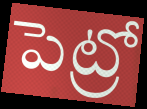
పెట్రో